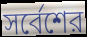
সর্বেশের